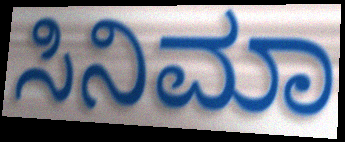
ಸಿನಿಮಾ